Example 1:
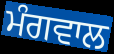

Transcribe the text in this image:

ਮੰਗਵਾਲ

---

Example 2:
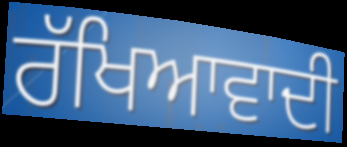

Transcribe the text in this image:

ਰੱਖਿਆਵਾਦੀ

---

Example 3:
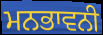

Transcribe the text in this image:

ਮਨਭਾਵਨੀ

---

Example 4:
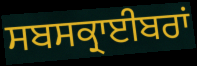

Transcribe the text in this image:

ਸਬਸਕ੍ਰਾਈਬਰਾਂ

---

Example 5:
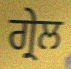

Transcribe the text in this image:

ਗ੍ਰੇਲ